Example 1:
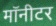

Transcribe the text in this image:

मॉनीटर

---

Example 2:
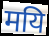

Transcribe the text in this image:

मयि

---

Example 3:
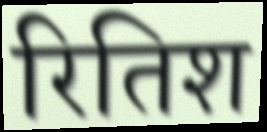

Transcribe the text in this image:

रितिश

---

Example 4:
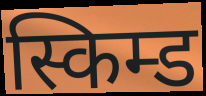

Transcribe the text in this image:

स्किम्ड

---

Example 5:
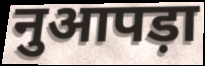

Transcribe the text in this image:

नुआपड़ा